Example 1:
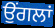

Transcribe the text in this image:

ਉੰਗਲਾਂ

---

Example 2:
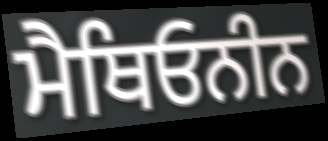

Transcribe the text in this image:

ਮੈਥਿਓਨੀਨ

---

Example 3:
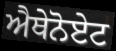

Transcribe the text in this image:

ਐਥੇਨੋਏਟ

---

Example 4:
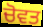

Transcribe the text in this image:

ਚੋਵਤ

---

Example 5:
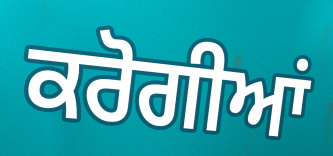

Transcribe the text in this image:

ਕਰੋਗੀਆਂ